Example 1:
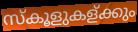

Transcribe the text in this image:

സ്കൂളുകള്ക്കും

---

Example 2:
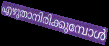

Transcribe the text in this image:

എഴുതാനിരിക്കുമ്പോൾ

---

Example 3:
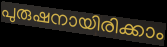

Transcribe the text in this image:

പുരുഷനായിരിക്കാം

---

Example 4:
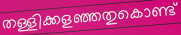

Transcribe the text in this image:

തള്ളിക്കളഞ്ഞതുകൊണ്ട്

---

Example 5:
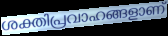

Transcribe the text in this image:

ശക്തിപ്രവാഹങ്ങളാണ്